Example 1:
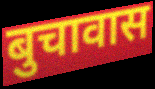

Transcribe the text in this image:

बुचावास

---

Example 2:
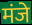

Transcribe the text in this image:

मंजे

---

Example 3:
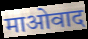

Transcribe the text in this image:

माओवाद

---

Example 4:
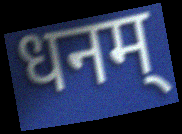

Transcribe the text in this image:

धनम्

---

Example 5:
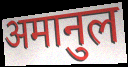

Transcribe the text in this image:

अमानुल